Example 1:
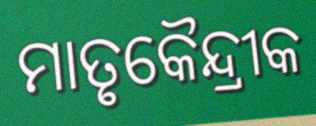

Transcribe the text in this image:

ମାତୃକୈନ୍ଦ୍ରୀକ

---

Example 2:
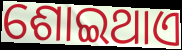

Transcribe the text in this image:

ଶୋଇଥାଏ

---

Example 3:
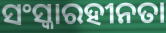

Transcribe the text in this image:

ସଂସ୍କାରହୀନତା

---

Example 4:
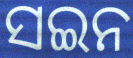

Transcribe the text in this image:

ସଇନ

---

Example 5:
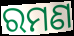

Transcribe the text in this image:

ରମଣ